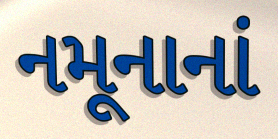
નમૂનાનાં